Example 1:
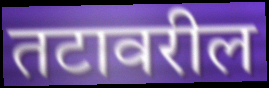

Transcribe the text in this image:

तटावरील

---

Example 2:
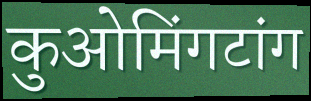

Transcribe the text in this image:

कुओमिंगटांग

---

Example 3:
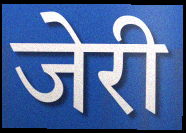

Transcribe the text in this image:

जेरी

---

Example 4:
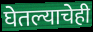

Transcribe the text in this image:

घेतल्याचेही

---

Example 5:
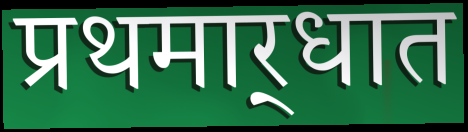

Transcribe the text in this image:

प्रथमार्धात